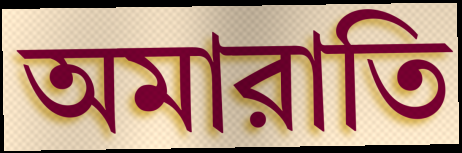
অমারাতি